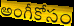
అంగీకోసం